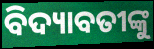
ବିଦ୍ୟାବତୀଙ୍କୁ